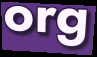
org